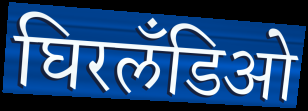
घिरलँडिओ